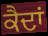
ਕੈਦਾਂ